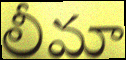
లీమా